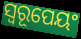
ସ୍ୱରୂପେୟଂ